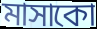
মাসাকো